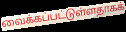
வைக்கப்பட்டுள்ளதாகக்